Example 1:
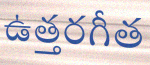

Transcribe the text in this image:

ఉత్తరగీత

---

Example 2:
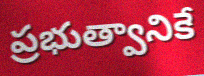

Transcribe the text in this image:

ప్రభుత్వానికే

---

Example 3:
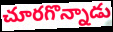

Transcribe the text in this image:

చూరగొన్నాడు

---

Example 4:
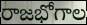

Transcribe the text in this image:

రాజభోగాల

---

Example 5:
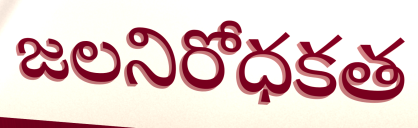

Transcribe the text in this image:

జలనిరోధకత